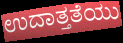
ಉದಾತ್ತತೆಯು